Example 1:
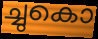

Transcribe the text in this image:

ച്ചുകൊ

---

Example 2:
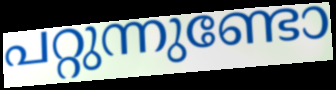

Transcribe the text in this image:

പറ്റുന്നുണ്ടോ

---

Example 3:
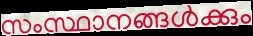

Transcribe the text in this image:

സംസ്ഥാനങ്ങൾക്കും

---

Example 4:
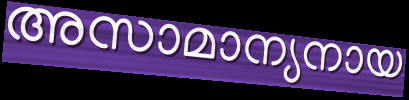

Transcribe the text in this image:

അസാമാന്യനായ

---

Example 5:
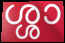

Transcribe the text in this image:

ശ്ശാ